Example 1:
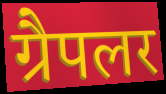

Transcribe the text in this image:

ग्रैपलर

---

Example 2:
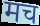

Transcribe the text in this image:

मच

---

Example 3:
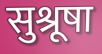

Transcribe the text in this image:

सुश्रूषा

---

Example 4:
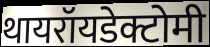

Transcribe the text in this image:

थायरॉयडेक्टोमी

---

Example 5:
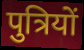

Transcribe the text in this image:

पुत्रियों